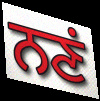
ਨਣਂ